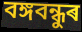
বঙ্গবন্ধুৰ